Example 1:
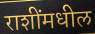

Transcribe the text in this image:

राशींमधील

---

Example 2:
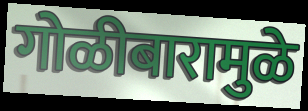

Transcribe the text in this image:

गोळीबारामुळे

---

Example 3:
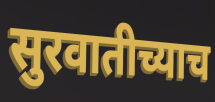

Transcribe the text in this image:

सुरवातीच्याच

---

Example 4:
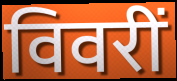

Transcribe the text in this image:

विवरीं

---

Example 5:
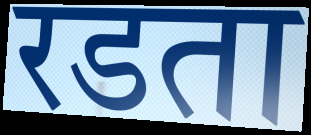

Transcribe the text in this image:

रडता